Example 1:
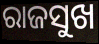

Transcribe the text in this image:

ରାଜସୁଖ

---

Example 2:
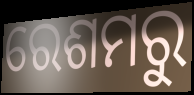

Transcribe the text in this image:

ରେଶମରୁ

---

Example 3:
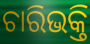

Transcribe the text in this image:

ଚାରିଭକ୍ତି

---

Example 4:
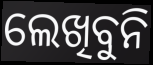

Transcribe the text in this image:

ଲେଖିବୁନି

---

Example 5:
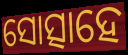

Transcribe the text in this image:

ସୋତ୍ସାହେ